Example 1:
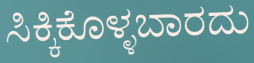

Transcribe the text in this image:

ಸಿಕ್ಕಿಕೊಳ್ಳಬಾರದು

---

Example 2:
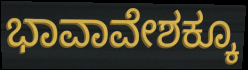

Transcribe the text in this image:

ಭಾವಾವೇಶಕ್ಕೂ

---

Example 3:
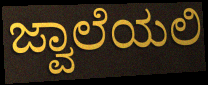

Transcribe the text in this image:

ಜ್ವಾಲೆಯಲಿ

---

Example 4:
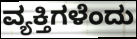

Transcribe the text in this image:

ವ್ಯಕ್ತಿಗಳೆಂದು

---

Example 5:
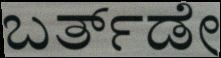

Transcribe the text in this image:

ಬರ್ತ್‌ಡೇ